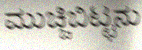
ಮುಚ್ಚಿಬಿಟ್ಟನು